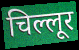
चिल्लूर